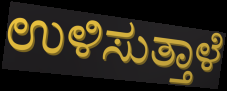
ಉಳಿಸುತ್ತಾಳೆ